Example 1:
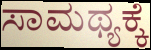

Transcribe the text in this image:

ಸಾಮಥ್ಯಕ್ಕೆ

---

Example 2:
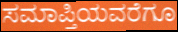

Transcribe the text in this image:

ಸಮಾಪ್ತಿಯವರೆಗೂ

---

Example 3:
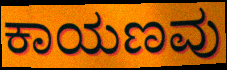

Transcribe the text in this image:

ಕಾಯಣವು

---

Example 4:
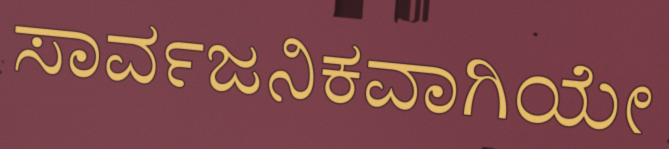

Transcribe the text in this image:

ಸಾರ್ವಜನಿಕವಾಗಿಯೇ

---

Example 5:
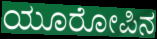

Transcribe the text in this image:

ಯೂರೋಪಿನ